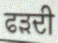
ਫੜਦੀ